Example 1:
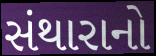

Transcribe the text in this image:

સંથારાનો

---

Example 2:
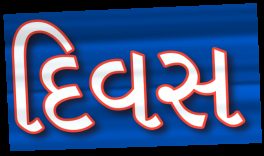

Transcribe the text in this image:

દિવસ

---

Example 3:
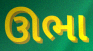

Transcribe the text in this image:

ઊભા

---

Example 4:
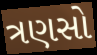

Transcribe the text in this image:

ત્રણસો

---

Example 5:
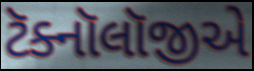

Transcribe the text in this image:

ટૅક્નૉલૉજીએ